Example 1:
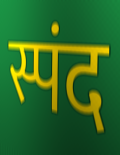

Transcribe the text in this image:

स्पंद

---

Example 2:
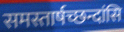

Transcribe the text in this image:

समस्तार्षच्छन्दांसि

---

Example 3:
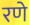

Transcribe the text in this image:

रणे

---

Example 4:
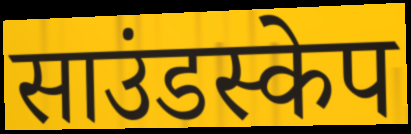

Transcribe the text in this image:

साउंडस्केप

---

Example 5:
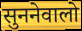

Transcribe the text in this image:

सुननेवालो